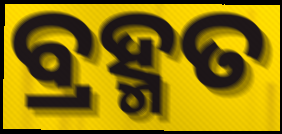
ବ୍ରହ୍ମତ